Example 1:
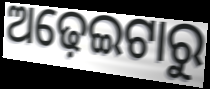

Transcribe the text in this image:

ଅଢ଼େଇଟାରୁ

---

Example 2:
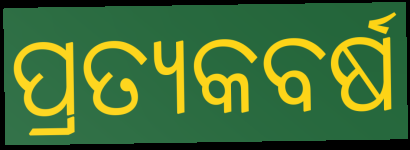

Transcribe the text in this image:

ପ୍ରତ୍ୟକବର୍ଷ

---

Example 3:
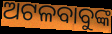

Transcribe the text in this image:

ଅଟଳବାବୁଙ୍କ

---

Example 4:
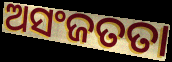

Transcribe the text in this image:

ଅସଂଜତତା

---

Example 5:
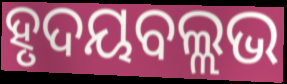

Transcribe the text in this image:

ହୃଦୟବଲ୍ଲଭ